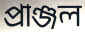
প্ৰাঞ্জল